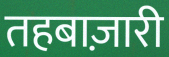
तहबाज़ारी